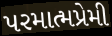
પરમાત્મપ્રેમી